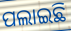
ପଲାଇଛି